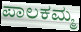
ಪಾಲಕಮ್ಮ